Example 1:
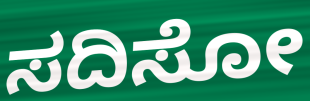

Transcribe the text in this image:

ಸದಿಸೋ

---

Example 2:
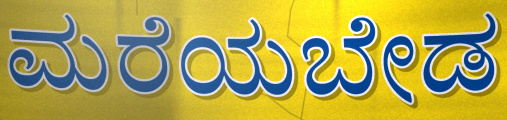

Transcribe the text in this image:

ಮರೆಯಬೇಡ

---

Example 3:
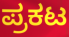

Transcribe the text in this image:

ಪ್ರಕಟ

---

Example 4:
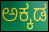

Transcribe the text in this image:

ಅಕ್ಕಡ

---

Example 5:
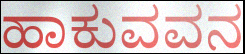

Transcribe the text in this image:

ಹಾಕುವವನ